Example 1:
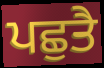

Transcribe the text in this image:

ਪਛੁਤੈ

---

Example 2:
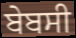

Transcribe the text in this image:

ਬੇਬਸੀ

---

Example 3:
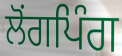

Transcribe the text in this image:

ਲੋਂਗਪਿੰਗ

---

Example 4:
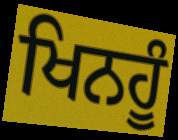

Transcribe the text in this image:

ਖਿਨਹੂੰ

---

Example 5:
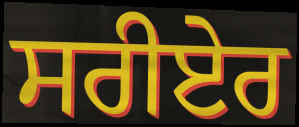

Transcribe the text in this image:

ਸਰੀਏਰ